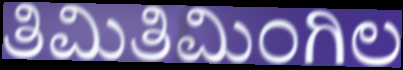
ತಿಮಿತಿಮಿಂಗಿಲ